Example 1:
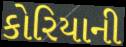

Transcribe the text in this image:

કોરિયાની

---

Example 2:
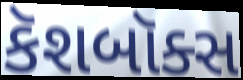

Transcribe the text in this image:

કૅશબૉક્સ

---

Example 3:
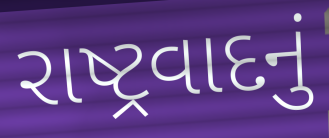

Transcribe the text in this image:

રાષ્ટ્રવાદનું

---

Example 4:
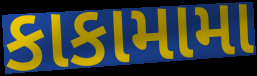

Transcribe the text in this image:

કાકામામા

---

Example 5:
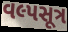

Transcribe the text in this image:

વલ્પસૂત્ર